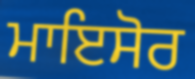
ਮਾਇਸੋਰ